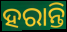
ହରାନ୍ତି